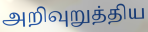
அறிவுறுத்திய